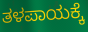
ತಳಪಾಯಕ್ಕೆ